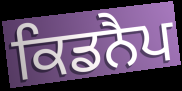
ਕਿਡਨੈਪ